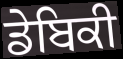
ਡੇਬਿਕੀ